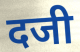
दजी